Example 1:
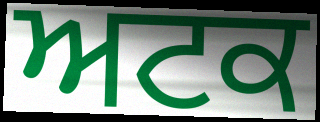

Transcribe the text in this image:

ਅਟਕ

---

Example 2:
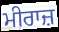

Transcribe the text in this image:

ਮੀਰਾਜ਼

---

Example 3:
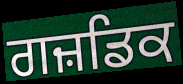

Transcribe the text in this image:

ਗਜ਼ਡਿਕ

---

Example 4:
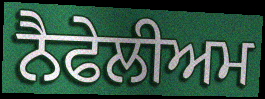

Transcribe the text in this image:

ਨੈਫੇਲੀਅਮ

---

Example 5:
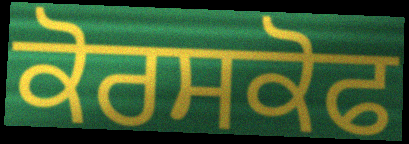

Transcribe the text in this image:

ਕੋਰਸਕੋਫ